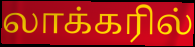
லாக்கரில்